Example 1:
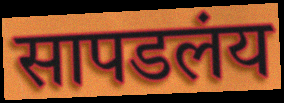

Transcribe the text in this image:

सापडलंय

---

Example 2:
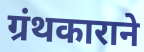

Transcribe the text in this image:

ग्रंथकाराने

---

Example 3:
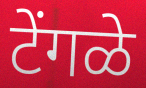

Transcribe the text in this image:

टेंगळे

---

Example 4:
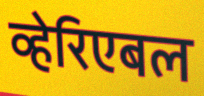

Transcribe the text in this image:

व्हेरिएबल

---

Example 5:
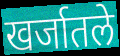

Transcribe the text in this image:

खर्जातले